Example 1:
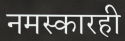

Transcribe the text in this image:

नमस्कारही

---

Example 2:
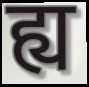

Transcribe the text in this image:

ह्य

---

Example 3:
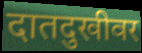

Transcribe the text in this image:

दातदुखीवर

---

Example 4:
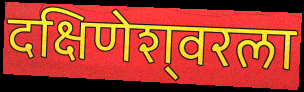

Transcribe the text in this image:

दक्षिणेश्वरला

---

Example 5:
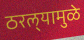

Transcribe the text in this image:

ठरल्यामुळे